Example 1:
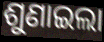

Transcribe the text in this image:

ଶୁଣାଇଲା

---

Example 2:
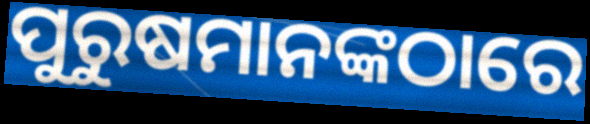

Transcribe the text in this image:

ପୁରୁଷମାନଙ୍କଠାରେ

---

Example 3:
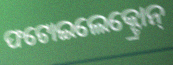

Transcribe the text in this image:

ଫଟୋଇଲେକ୍ଟ୍ରୋନ୍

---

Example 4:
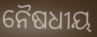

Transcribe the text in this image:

ନୈଷଧୀୟ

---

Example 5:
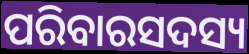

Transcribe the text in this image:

ପରିବାରସଦସ୍ୟ